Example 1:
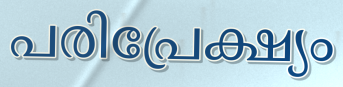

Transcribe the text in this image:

പരിപ്രേക്ഷ്യം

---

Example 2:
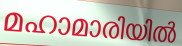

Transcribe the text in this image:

മഹാമാരിയിൽ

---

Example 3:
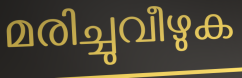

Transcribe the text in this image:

മരിച്ചുവീഴുക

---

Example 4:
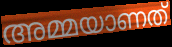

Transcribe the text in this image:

അമ്മയാണത്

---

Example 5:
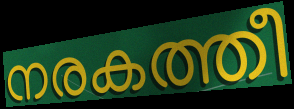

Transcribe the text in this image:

നരകത്തീ